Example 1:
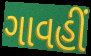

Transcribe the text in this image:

ગાવહીં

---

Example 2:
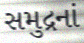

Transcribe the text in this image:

સમુદ્રનાં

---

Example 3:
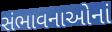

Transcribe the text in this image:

સંભાવનાઓનાં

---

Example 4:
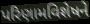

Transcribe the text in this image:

પરિણામવિશેષને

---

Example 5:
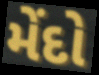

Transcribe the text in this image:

મેંદો